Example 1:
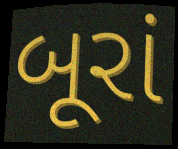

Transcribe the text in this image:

બૂરાં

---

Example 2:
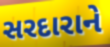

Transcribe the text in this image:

સરદારાને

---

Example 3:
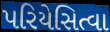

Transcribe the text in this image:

પરિયેસિત્વા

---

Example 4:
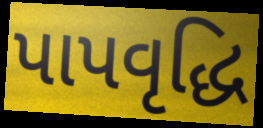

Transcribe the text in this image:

પાપવૃદ્ધિ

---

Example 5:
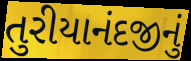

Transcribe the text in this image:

તુરીયાનંદજીનું